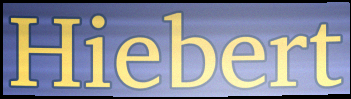
Hiebert